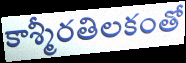
కాశ్మీరతిలకంతో